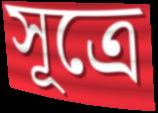
সূত্রে